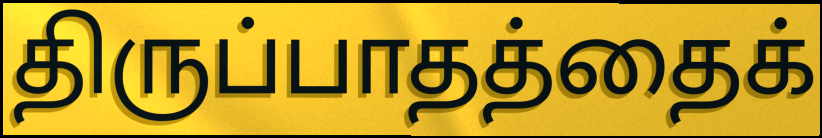
திருப்பாதத்தைக்